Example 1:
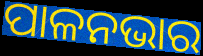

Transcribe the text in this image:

ପାଳନଭାର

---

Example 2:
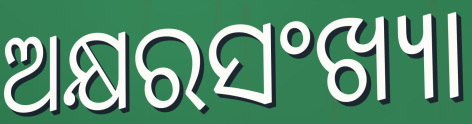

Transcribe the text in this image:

ଅକ୍ଷରସଂଖ୍ୟା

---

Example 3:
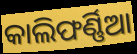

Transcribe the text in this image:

କାଲିଫର୍ଣ୍ଣିଆ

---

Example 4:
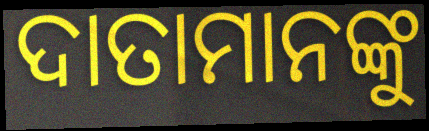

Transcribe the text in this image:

ଦାତାମାନଙ୍କୁ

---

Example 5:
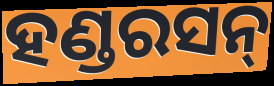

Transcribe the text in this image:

ହଣ୍ଡରସନ୍